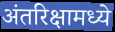
अंतरिक्षामध्ये